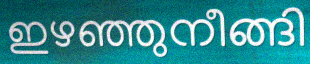
ഇഴഞ്ഞുനീങ്ങി